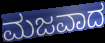
ಮಜವಾದ